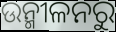
ଉନ୍ମୀଳନରୁ